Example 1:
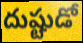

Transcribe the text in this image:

దుష్టుడో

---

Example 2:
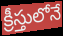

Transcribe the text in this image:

క్రీస్తులోనే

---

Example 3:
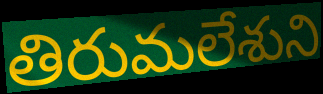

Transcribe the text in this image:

తిరుమలేశుని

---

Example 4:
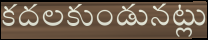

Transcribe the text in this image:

కదలకుండునట్లు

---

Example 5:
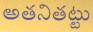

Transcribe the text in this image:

అతనితట్టు